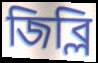
জিব্লি